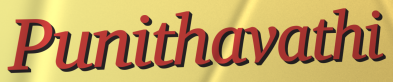
Punithavathi